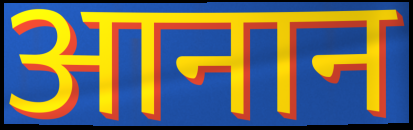
आनान